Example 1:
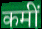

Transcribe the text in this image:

कमीं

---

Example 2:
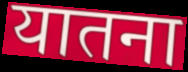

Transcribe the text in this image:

यातना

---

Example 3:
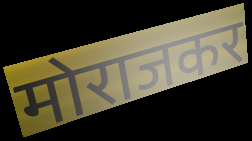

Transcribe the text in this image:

मोराजकर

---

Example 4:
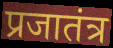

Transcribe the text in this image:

प्रजातंत्र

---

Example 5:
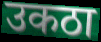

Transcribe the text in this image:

उकठा